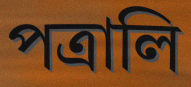
পত্রালি